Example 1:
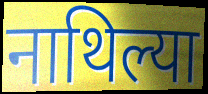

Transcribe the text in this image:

नाथिल्या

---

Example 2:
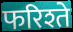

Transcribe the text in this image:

फरिश्ते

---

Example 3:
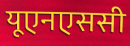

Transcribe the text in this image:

यूएनएससी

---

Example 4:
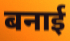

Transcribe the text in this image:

बनाई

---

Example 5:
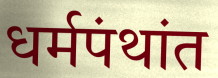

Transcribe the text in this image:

धर्मपंथांत